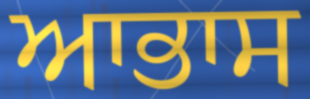
ਆਭਾਸ